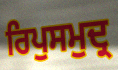
ਰਿਪੁਸਮੁਦ੍ਰ